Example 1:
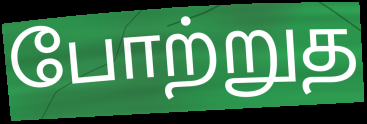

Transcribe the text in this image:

போற்றுத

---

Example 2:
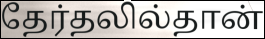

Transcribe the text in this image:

தேர்தலில்தான்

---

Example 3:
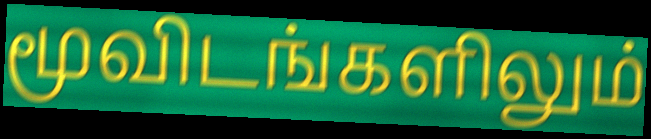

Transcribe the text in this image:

மூவிடங்களிலும்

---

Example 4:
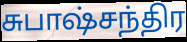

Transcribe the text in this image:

சுபாஷ்சந்திர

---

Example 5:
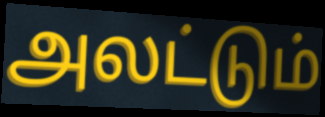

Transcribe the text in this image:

அலட்டும்